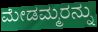
ಮೇಡಮ್ಮರನ್ನು